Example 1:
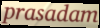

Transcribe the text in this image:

prasadam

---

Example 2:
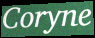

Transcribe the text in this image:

Coryne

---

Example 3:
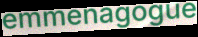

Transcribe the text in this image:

emmenagogue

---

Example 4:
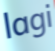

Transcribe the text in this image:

lagi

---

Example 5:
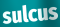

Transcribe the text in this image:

sulcus